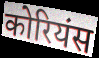
कोरियंस